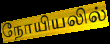
நோயியலில்